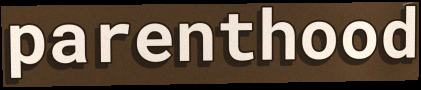
parenthood